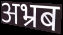
अभ्रब